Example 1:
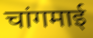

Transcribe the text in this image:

चांगमाई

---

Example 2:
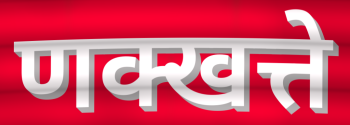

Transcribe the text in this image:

णक्खत्ते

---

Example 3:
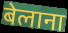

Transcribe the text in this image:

बेलाना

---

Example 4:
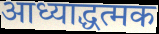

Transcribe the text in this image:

आध्याद्धत्मक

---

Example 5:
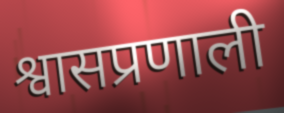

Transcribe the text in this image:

श्वासप्रणाली